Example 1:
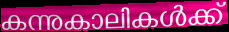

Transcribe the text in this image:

കന്നുകാലികൾക്ക്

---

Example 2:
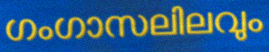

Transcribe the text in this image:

ഗംഗാസലിലവും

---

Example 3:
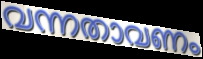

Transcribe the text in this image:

വന്നതാവണം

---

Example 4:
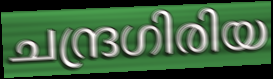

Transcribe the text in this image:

ചന്ദ്രഗിരിയ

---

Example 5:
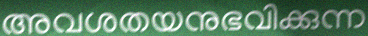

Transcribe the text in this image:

അവശതയനുഭവിക്കുന്ന